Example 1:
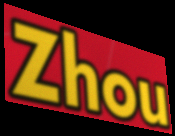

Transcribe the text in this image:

Zhou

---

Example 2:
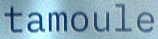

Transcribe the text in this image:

tamoule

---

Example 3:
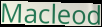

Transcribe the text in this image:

Macleod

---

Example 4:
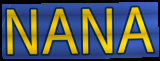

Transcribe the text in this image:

NANA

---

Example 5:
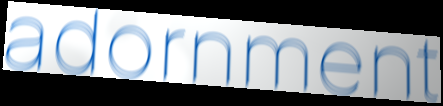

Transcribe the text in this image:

adornment